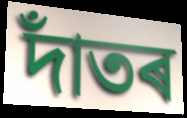
দাঁতৰ